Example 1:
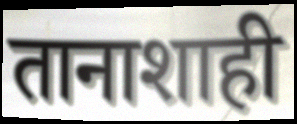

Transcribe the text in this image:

तानाशाही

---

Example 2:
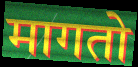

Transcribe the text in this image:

मागतो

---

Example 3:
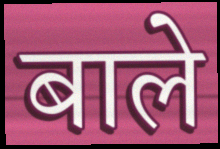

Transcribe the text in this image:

बाले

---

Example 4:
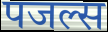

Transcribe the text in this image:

पजल्स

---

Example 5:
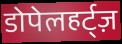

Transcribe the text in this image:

डोपेलहर्ट्ज़